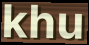
khu